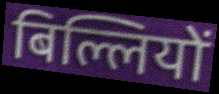
बिल्लियों